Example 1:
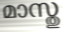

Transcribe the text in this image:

മാസ്തു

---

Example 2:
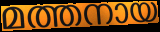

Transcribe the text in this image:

മത്തനായ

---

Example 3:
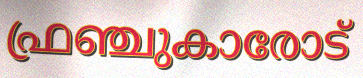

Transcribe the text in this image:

ഫ്രഞ്ചുകാരോട്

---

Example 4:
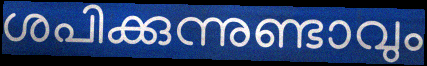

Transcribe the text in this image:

ശപിക്കുന്നുണ്ടാവും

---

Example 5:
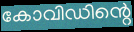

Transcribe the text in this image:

കോവിഡിന്റെ